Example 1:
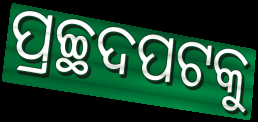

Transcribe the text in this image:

ପ୍ରଚ୍ଛଦପଟକୁ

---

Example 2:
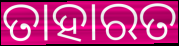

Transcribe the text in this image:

ତାହାରତ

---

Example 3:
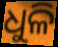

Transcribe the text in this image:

ଧୁଳି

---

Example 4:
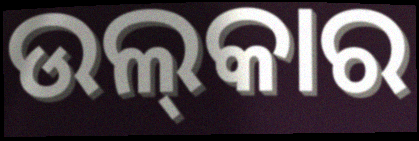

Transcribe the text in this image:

ଉଲ୍‍କାର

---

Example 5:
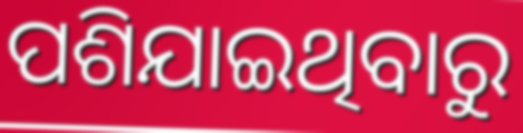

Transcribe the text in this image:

ପଶିଯାଇଥିବାରୁ